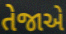
તેજાએ